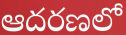
ఆదరణలో